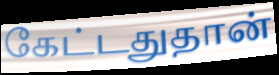
கேட்டதுதான்